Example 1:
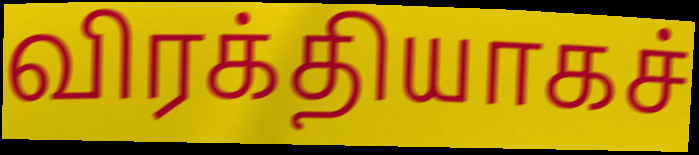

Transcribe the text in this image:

விரக்தியாகச்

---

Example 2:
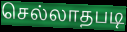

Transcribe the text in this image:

செல்லாதபடி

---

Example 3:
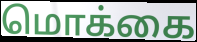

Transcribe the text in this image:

மொக்கை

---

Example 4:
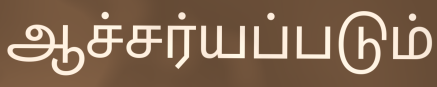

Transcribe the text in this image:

ஆச்சர்யப்படும்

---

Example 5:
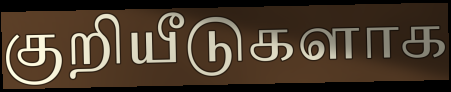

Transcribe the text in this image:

குறியீடுகளாக